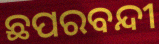
ଛପରବନ୍ଦୀ